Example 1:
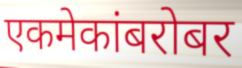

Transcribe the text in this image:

एकमेकांबरोबर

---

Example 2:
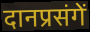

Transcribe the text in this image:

दानप्रसंगें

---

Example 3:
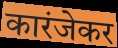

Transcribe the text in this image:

कारंजेकर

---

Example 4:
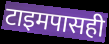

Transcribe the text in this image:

टाइमपासही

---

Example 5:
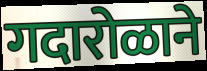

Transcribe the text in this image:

गदारोळाने